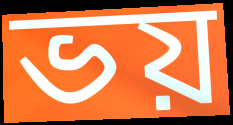
ভয়